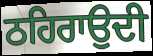
ਠਹਿਰਾਉਦੀ